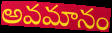
అవమానం